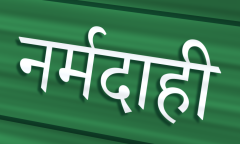
नर्मदाही